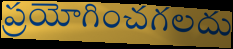
ప్రయోగించగలదు